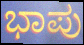
ಭಾಪು